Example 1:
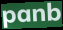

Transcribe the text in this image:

panb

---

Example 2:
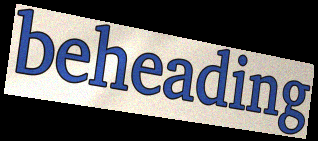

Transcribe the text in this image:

beheading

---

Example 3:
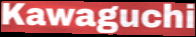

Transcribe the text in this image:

Kawaguchi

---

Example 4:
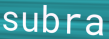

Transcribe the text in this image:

subra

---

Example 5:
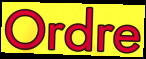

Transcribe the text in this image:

Ordre